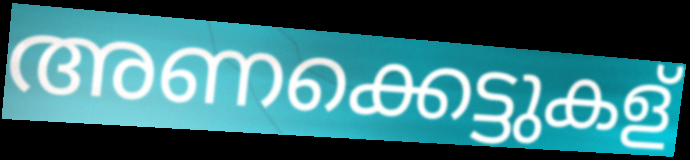
അണക്കെട്ടുകള്